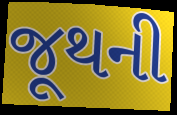
જૂથની